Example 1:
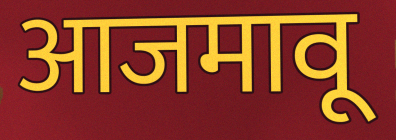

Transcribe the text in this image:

आजमावू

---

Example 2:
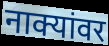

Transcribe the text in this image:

नाक्यांवर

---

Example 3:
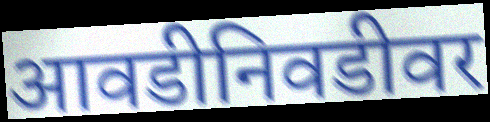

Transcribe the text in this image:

आवडीनिवडीवर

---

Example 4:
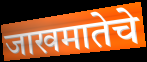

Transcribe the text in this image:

जाखमातेचे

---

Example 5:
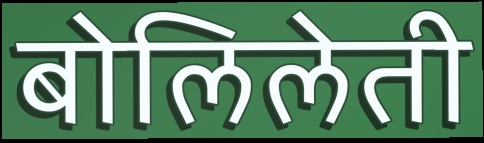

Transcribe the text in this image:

बोलिलेती